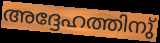
അദ്ദേഹത്തിനു്